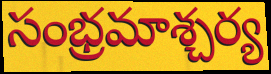
సంభ్రమాశ్చర్య